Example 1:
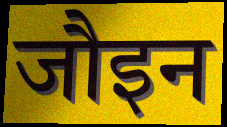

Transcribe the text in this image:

जौइन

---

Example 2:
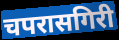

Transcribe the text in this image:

चपरासगिरी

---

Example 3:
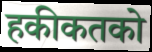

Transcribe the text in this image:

हकीकतको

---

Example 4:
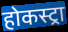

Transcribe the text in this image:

होकस्ट्रा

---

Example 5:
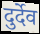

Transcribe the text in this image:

दुर्देव